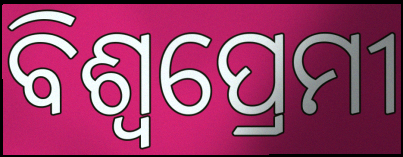
ବିଶ୍ବପ୍ରେମୀ